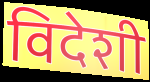
विदेशी